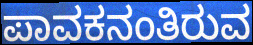
ಪಾವಕನಂತಿರುವ